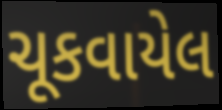
ચૂકવાયેલ